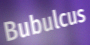
Bubulcus